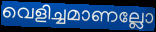
വെളിച്ചമാണല്ലോ